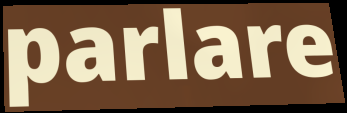
parlare